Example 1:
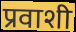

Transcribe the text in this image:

प्रवाशी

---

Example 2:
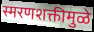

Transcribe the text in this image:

स्मरणशक्तीमुळे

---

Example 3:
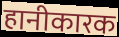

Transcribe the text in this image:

हानीकारक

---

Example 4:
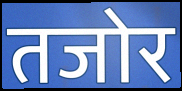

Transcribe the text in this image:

तजोर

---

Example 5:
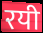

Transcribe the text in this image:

रयी